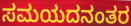
ಸಮಯದನಂತರ